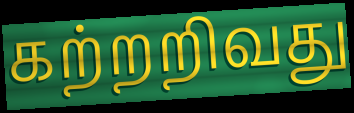
கற்றறிவது